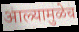
आल्यामुळेच